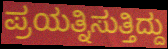
ಪ್ರಯತ್ನಿಸುತ್ತಿದ್ದು